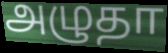
அழுதா